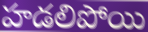
హడలిపోయి